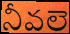
నీవలె